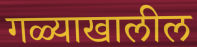
गळ्याखालील